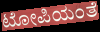
ಟೋಪಿಯಂತೆ